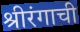
श्रीरंगाची